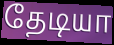
தேடியா